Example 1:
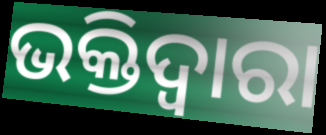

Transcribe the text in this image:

ଭକ୍ତିଦ୍ଵାରା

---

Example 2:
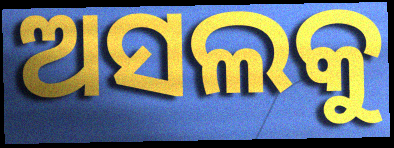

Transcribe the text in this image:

ଅସଲକୁ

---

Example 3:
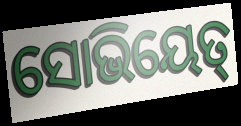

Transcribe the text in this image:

ସୋଭିୟେତ୍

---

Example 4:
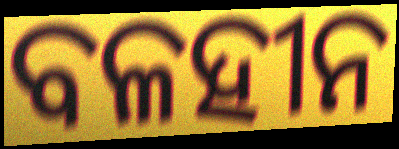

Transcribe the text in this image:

ବଳହୀନ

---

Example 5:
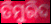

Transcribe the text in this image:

ତିମୁରିଦ